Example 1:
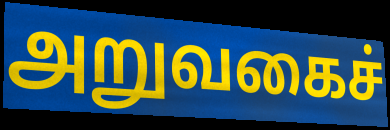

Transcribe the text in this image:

அறுவகைச்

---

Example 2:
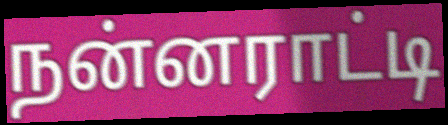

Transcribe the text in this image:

நன்னராட்டி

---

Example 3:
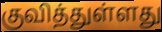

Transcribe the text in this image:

குவித்துள்ளது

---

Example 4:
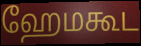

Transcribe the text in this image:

ஹேமகூட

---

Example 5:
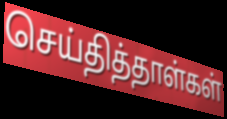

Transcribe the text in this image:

செய்தித்தாள்கள்